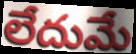
లేదుమే